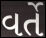
વર્તે